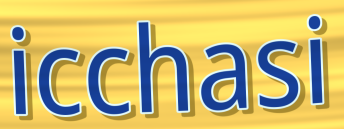
icchasi